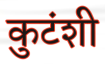
कुटंशी